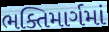
ભક્તિમાર્ગમાં